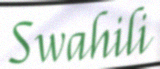
Swahili